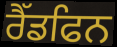
ਰੈੱਡਫਿਨ